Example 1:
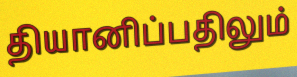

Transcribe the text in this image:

தியானிப்பதிலும்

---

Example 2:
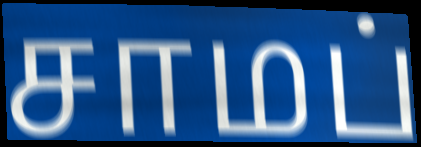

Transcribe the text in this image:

சாமப்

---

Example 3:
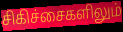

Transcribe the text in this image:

சிகிச்சைகளிலும்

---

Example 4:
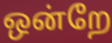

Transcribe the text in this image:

ஒன்றே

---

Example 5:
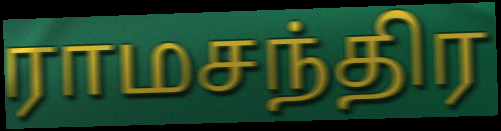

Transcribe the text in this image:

ராமசந்திர